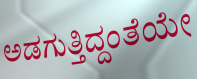
ಅಡಗುತ್ತಿದ್ದಂತೆಯೇ